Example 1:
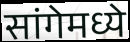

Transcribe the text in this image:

सांगेमध्ये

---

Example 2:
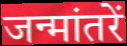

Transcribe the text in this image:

जन्मांतरें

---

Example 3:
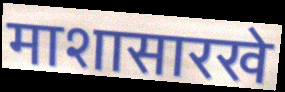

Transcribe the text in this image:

माशासारखे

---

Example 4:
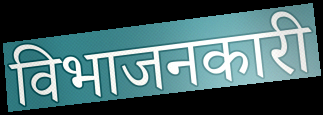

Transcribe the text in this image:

विभाजनकारी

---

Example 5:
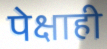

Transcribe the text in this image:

पेक्षाही